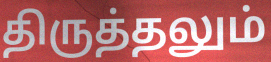
திருத்தலும்